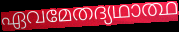
ഏവമേതദ്യഥാത്ഥ